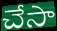
చేసా